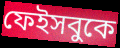
ফেইসবুকে